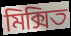
মিক্সিত